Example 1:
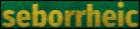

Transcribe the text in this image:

seborrheic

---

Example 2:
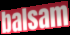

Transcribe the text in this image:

balsam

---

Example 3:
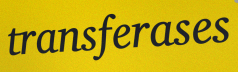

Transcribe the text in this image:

transferases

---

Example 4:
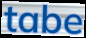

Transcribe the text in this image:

tabe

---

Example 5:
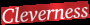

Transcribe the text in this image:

Cleverness